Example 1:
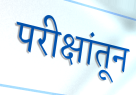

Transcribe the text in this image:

परीक्षांतून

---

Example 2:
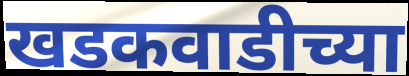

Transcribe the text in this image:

खडकवाडीच्या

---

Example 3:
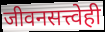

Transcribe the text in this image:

जीवनसत्त्वेही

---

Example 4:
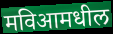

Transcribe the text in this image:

मविआमधील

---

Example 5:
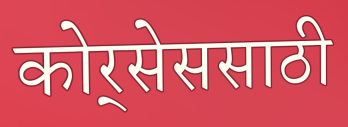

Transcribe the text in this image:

कोर्सेससाठी